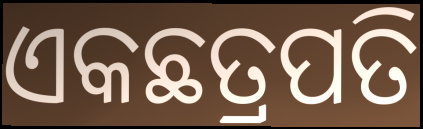
ଏକଛତ୍ରପତି